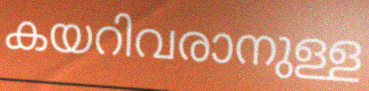
കയറിവരാനുള്ള